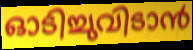
ഓടിച്ചുവിടാൻ